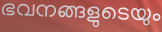
ഭവനങ്ങളുടെയും